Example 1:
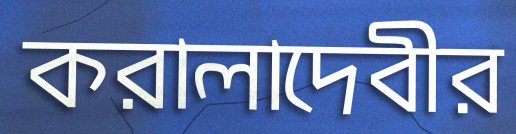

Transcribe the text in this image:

করালাদেবীর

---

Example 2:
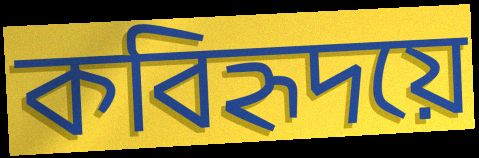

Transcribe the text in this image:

কবিহৃদয়ে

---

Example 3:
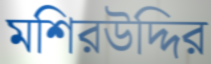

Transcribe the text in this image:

মশিরউদ্দির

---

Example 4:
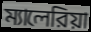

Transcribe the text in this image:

ম্যালেরিয়া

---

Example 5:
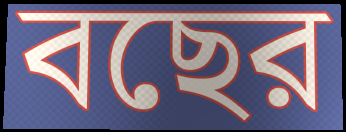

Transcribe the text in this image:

বছের